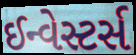
ઈન્વેસ્ટર્સ